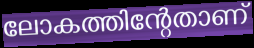
ലോകത്തിന്റേതാണ്